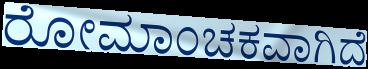
ರೋಮಾಂಚಕವಾಗಿದೆ